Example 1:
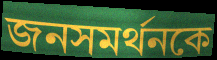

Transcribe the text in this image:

জনসমর্থনকে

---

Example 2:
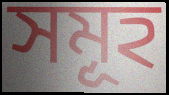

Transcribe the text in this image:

সমূহ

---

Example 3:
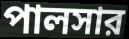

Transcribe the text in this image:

পালসার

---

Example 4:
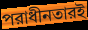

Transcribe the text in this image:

পরাধীনতারই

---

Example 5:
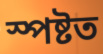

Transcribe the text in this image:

স্পষ্টত